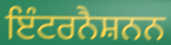
ਇੰਟਰਨੈਸ਼ਨਨ